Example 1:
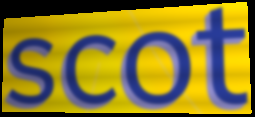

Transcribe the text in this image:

scot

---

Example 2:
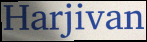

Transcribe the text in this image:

Harjivan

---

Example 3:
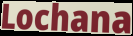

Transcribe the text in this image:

Lochana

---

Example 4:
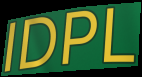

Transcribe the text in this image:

IDPL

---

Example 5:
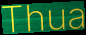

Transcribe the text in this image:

Thua